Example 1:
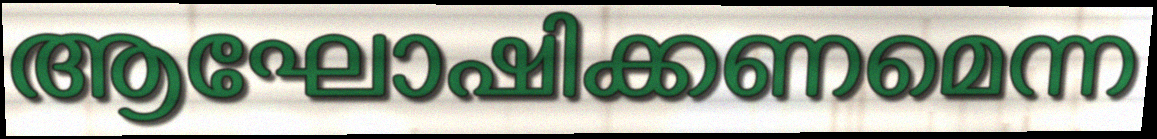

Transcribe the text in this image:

ആഘോഷിക്കണമെന്ന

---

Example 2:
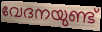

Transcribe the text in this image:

വേദനയുണ്ട്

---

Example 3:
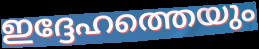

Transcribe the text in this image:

ഇദ്ദേഹത്തെയും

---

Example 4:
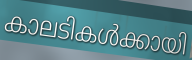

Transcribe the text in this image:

കാലടികൾക്കായി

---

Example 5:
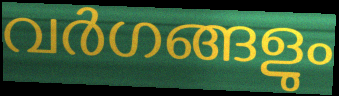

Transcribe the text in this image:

വർഗങ്ങളും